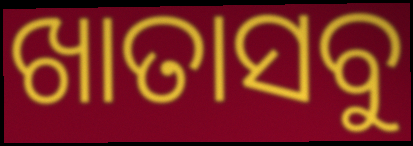
ଖାତାସବୁ